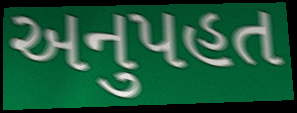
અનુપહત